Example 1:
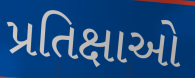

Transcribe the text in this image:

પ્રતિક્ષાઓ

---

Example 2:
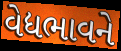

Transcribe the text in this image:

વેદ્યભાવને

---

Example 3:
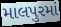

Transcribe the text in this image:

માલપુરમાં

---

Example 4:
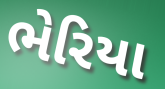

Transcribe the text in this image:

ભેરિયા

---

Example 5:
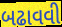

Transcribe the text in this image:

બઢાવવી